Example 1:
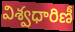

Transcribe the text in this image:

విశ్వధారిణీ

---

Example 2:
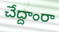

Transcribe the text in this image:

చేద్దాంరా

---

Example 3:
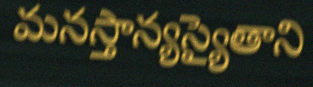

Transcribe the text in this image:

మనస్తాన్యస్యైతాని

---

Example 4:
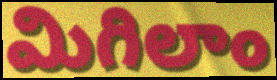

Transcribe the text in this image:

మిగిలాం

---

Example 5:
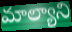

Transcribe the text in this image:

మాల్యాని